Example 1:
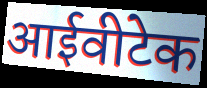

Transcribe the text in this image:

आईवीटेक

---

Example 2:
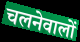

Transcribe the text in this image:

चलनेवालों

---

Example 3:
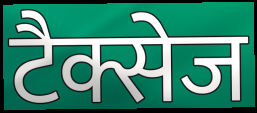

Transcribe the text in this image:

टैक्सेज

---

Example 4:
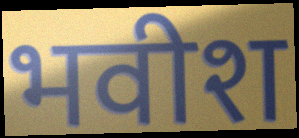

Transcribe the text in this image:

भवीश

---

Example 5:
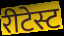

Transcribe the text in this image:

रीटेस्ट